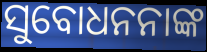
ସୁବୋଧନନାଙ୍କ